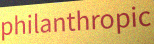
philanthropic